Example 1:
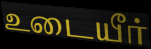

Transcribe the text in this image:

உடையீர்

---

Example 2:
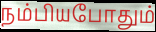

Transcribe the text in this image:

நம்பியபோதும்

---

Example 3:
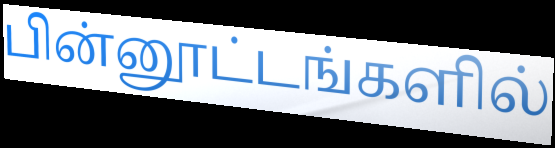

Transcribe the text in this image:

பின்னூட்டங்களில்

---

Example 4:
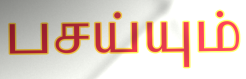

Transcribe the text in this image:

பசய்யும்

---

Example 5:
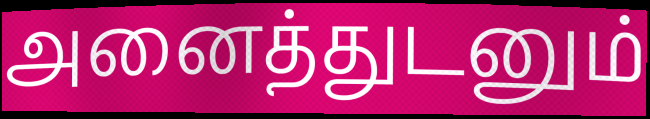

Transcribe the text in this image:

அனைத்துடனும்